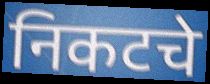
निकटचे